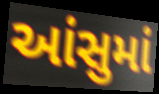
આંસુમાં